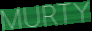
MURTY